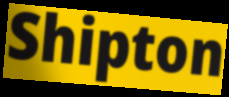
Shipton